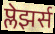
प्लेझर्स